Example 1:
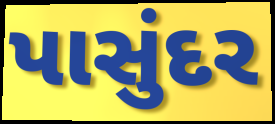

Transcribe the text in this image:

પાસુંદર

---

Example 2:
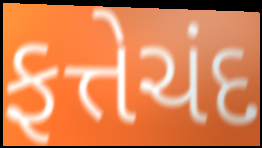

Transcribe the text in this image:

ફત્તેચંદ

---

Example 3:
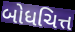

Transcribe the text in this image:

બોધચિત્ત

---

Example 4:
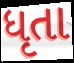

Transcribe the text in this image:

ધૃતા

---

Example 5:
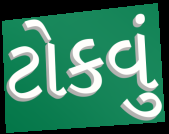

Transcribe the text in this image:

ટોકવું